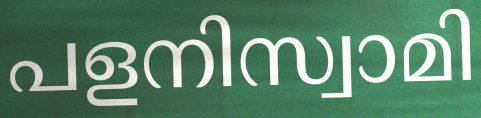
പളനിസ്വാമി